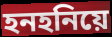
হনহনিয়ে